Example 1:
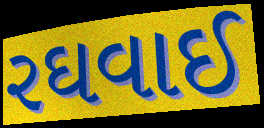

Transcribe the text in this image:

રઘવાઈ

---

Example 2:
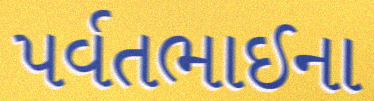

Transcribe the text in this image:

પર્વતભાઈના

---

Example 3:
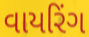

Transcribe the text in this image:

વાયરિંગ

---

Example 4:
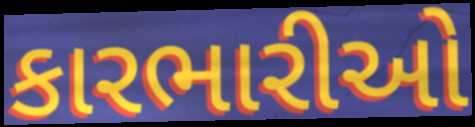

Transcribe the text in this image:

કારભારીઓ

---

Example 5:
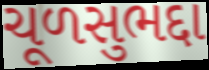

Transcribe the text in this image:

ચૂળસુભદ્દા